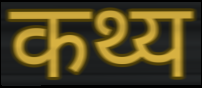
कथ्य